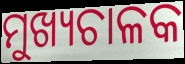
ମୁଖ୍ୟଚାଳକ